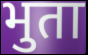
भुता